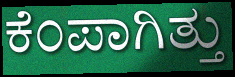
ಕೆಂಪಾಗಿತ್ತು